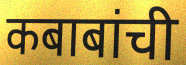
कबाबांची